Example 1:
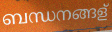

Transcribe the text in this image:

ബന്ധനങ്ങള്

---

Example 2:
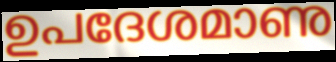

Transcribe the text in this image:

ഉപദേശമാണു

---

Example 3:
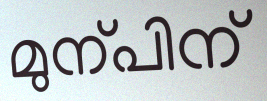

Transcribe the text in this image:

മുന്പിന്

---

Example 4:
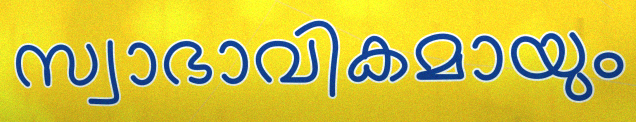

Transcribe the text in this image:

സ്വാഭാവികമായും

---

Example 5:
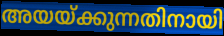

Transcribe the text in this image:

അയയ്ക്കുന്നതിനായി